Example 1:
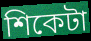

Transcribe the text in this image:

শিকেটা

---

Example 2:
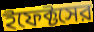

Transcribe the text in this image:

ইফেক্টসের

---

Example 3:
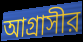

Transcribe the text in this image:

আগ্রাসীর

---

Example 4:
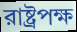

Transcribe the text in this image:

রাষ্ট্রপক্ষ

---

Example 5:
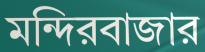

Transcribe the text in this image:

মন্দিরবাজার